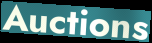
Auctions